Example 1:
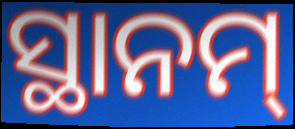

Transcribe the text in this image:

ସ୍ଥାନମ୍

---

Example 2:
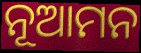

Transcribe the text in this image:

ନୂଆମନ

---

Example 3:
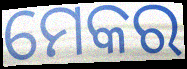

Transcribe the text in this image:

ମେକର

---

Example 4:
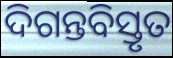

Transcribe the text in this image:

ଦିଗନ୍ତବିସ୍ତୃତ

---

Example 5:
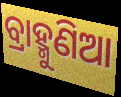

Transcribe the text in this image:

ବ୍ରାହ୍ମୁଣିଆ